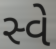
સ્વે